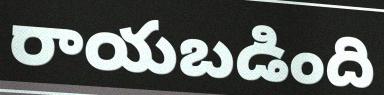
రాయబడింది